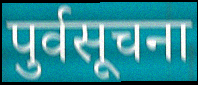
पुर्वसूचना